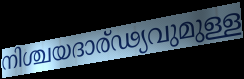
നിശ്ചയദാര്ഢ്യവുമുള്ള